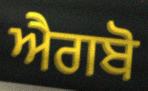
ਐਗਬੋ